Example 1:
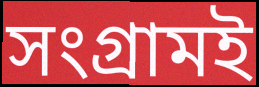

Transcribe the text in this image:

সংগ্রামই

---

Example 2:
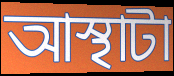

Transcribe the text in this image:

আস্থাটা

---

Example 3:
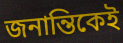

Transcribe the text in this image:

জনান্তিকেই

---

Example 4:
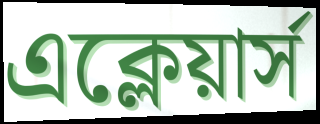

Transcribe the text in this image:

এক্লেয়ার্স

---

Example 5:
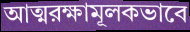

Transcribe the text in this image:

আত্মরক্ষামূলকভাবে